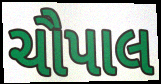
ચૌપાલ